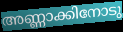
അണ്ണാക്കിനോടു